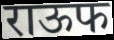
राऊफ